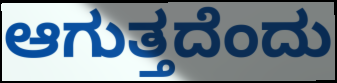
ಆಗುತ್ತದೆಂದು